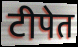
टीपेत